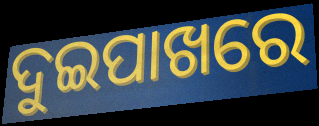
ଦୁଇପାଖରେ